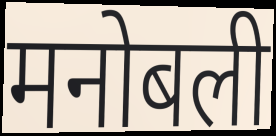
मनोबली